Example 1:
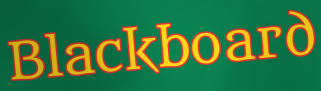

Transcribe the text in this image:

Blackboard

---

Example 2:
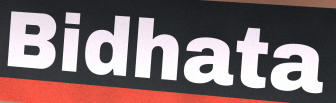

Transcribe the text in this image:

Bidhata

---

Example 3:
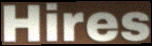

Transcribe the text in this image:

Hires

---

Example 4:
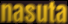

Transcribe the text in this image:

nasuta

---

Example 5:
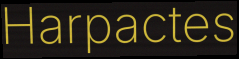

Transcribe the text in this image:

Harpactes